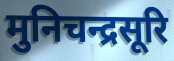
मुनिचन्द्रसूरि